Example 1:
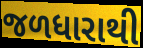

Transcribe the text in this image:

જળધારાથી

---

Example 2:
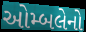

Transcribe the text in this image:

ઓમ્બલેનો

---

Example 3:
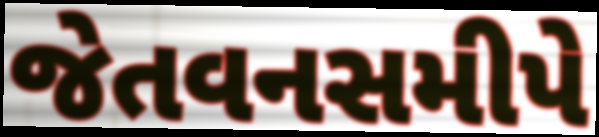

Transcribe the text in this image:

જેતવનસમીપે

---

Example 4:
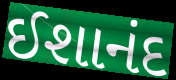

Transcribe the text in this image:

ઈશાનંદ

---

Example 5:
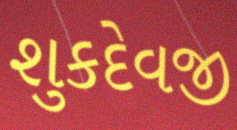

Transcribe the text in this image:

શુકદેવજી